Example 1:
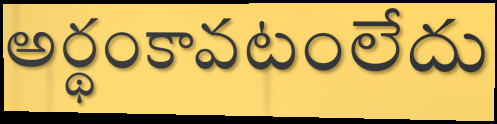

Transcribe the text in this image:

అర్థంకావటంలేదు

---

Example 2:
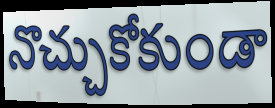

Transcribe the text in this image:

నొచ్చుకోకుండా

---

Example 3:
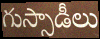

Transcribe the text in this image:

గుస్సాడీలు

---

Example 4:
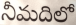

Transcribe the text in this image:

నీమదిలో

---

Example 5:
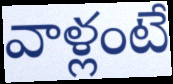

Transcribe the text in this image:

వాళ్లంటే